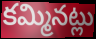
కమ్మినట్లు